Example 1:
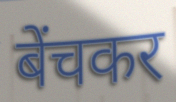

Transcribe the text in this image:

बेंचकर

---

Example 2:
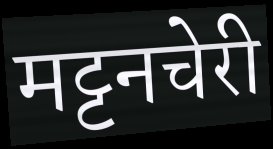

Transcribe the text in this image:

मट्टनचेरी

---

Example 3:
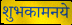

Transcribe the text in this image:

शुभकामनये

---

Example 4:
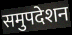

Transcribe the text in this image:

समुपदेशन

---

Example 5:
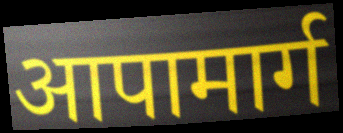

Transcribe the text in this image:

आपामार्ग